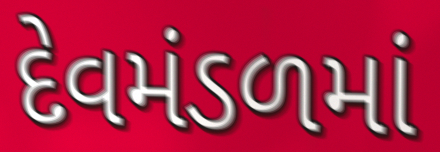
દેવમંડળમાં